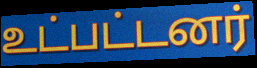
உட்பட்டனர்